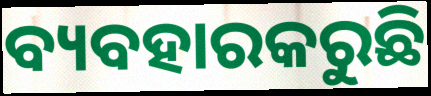
ବ୍ୟବହାରକରୁଛି